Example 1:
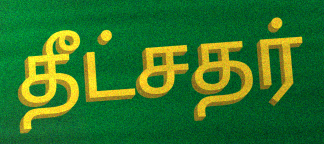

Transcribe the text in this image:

தீட்சதர்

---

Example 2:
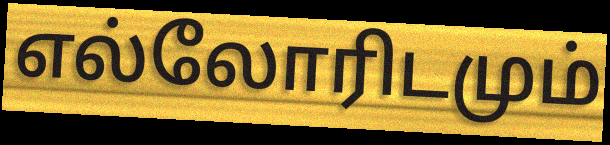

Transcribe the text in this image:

எல்லோரிடமும்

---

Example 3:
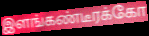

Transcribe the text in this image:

இளங்கண்டீரக்கோ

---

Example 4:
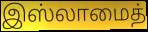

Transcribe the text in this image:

இஸ்லாமைத்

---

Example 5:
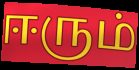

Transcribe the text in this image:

ஈரும்